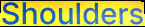
Shoulders